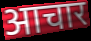
आचार